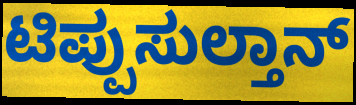
ಟಿಪ್ಪುಸುಲ್ತಾನ್